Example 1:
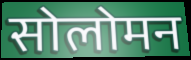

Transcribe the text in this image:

सोलोमन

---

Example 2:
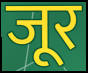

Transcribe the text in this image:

जूर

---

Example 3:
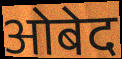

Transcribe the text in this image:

ओबेद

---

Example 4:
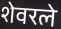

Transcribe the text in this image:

शेवरले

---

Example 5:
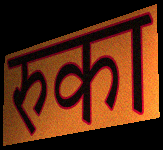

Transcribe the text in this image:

रुका